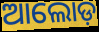
ଆଲୋଡ଼